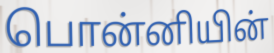
பொன்னியின்